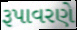
રૂપાવરણે